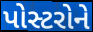
પોસ્ટરોને